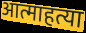
आत्माहत्या